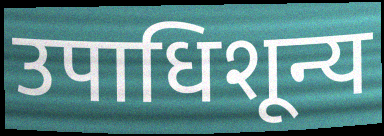
उपाधिशून्य